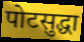
पोटसुद्धा